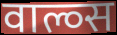
वाल्व्स